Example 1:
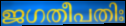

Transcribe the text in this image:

ജഗതീപതിഃ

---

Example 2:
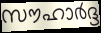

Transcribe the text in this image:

സൗഹാർദ്ദ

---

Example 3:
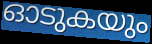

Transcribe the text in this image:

ഓടുകയും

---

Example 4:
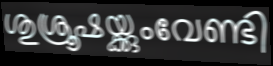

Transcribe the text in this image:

ശുശ്രൂഷയ്ക്കുംവേണ്ടി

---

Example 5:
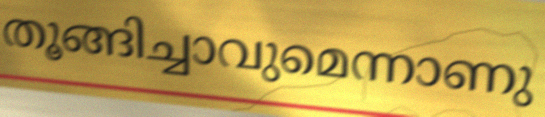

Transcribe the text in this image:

തൂങ്ങിച്ചാവുമെന്നാണു